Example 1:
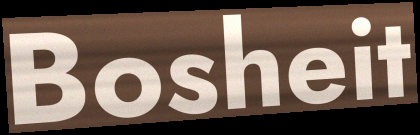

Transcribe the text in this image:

Bosheit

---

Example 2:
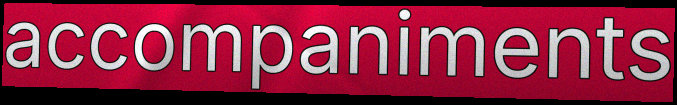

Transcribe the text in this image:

accompaniments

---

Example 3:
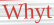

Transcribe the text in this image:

Whyt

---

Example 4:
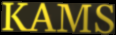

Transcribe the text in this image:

KAMS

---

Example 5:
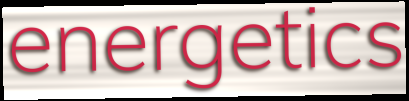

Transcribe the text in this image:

energetics